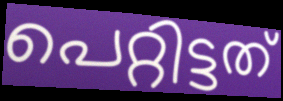
പെറ്റിട്ടത്